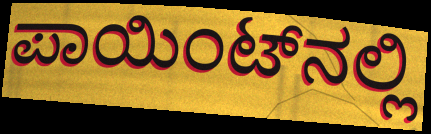
ಪಾಯಿಂಟ್‌ನಲ್ಲಿ